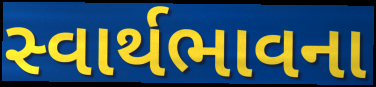
સ્વાર્થભાવના